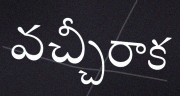
వచ్చీరాక